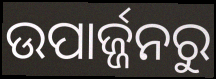
ଉପାର୍ଜ୍ଜନରୁ